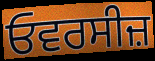
ਓਵਰਸੀਜ਼